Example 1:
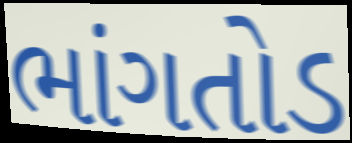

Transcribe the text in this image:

ભાંગતોડ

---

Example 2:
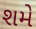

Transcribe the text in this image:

શમે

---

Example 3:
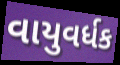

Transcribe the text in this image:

વાયુવર્ધક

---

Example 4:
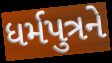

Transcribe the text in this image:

ધર્મપુત્રને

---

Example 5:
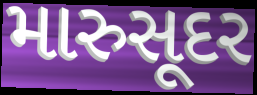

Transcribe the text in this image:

મારુસૂદર